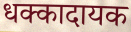
धक्कादायक